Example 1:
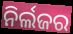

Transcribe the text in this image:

ନିର୍ଲଜର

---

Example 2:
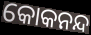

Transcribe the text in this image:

କୋକନନ୍ଦ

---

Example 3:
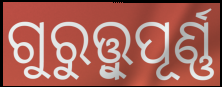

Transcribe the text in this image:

ଗୁରୁତ୍ତ୍ୱୁପୂର୍ଣ୍ଣ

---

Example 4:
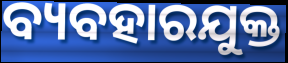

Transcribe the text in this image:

ବ୍ୟବହାରଯୁକ୍ତ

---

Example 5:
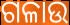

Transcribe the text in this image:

ଗଳାଉ